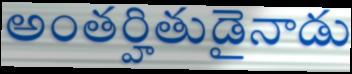
అంతర్హితుడైనాడు